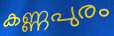
കണ്ണപുരം